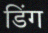
डिंग